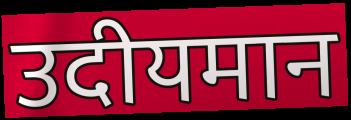
उदीयमान